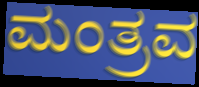
ಮಂತ್ರವ